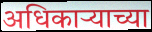
अधिकाऱ्याच्या